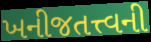
ખનીજતત્ત્વની